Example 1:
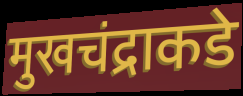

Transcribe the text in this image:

मुखचंद्राकडे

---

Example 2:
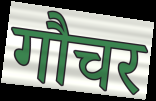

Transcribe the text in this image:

गौचर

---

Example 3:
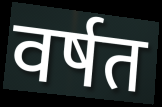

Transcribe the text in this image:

वर्षत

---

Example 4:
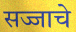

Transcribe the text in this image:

सज्जाचे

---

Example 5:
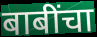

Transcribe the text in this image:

बाबींचा